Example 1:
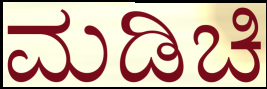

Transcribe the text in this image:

ಮಡಿಚಿ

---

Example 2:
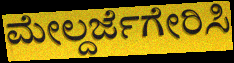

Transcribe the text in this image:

ಮೇಲ್ದರ್ಜೆಗೇರಿಸಿ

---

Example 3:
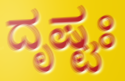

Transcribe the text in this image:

ದೃಷ್ಟಃ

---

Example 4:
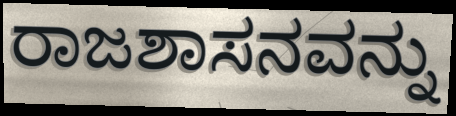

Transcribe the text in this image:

ರಾಜಶಾಸನವನ್ನು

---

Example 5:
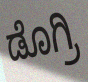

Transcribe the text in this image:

ಡೊಗ್ರಿ